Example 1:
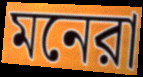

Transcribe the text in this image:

মনেরা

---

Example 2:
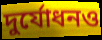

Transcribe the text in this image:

দুর্যোধনও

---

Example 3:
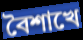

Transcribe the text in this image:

বৈশাখে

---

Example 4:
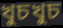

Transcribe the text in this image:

খুচখুচ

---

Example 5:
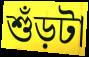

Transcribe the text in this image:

শুঁড়টা